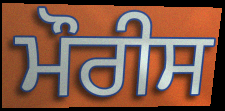
ਮੌਰੀਸ